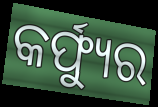
କର୍ଫ୍ୟୁର